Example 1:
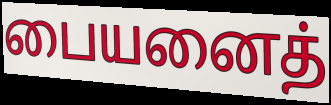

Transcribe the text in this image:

பையனைத்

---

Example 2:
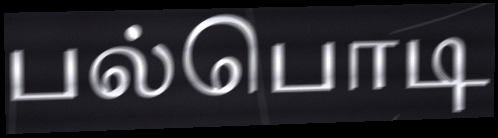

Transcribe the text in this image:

பல்பொடி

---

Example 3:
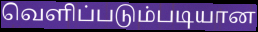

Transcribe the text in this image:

வெளிப்படும்படியான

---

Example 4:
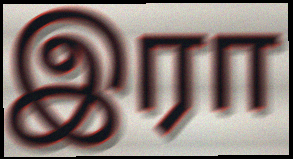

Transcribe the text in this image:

இரா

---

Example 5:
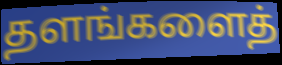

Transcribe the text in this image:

தளங்களைத்